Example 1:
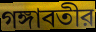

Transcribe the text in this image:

গঙ্গাবতীর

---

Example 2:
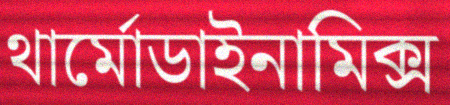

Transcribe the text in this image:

থার্মোডাইনামিক্স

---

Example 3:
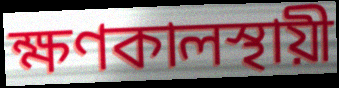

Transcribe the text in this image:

ক্ষণকালস্থায়ী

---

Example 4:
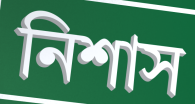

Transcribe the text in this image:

নিশাস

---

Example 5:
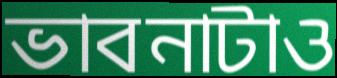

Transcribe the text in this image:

ভাবনাটাও